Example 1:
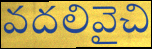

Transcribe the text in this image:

వదలివైచి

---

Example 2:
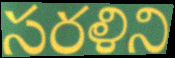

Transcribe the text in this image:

సరళిని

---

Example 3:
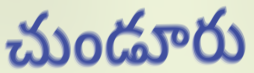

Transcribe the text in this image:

చుండూరు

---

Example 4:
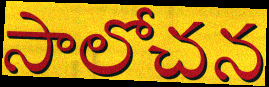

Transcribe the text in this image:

సాలోచన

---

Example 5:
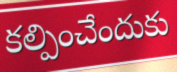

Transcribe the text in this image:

కల్పించేందుకు